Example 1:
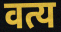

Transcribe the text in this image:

वत्य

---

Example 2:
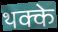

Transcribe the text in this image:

थक्के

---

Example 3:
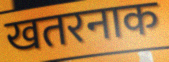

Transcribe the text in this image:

खतरनाक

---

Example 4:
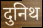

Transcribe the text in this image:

दुनिथ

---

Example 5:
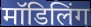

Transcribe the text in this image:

मॉडिलिंग